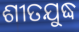
ଶୀତଯୁଦ୍ଧ